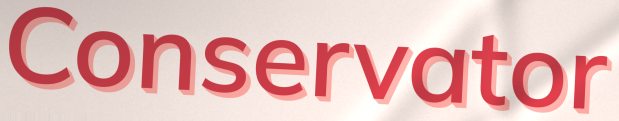
Conservator